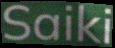
Saiki